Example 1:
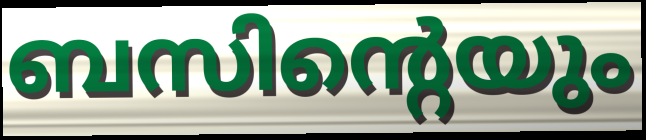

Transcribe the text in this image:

ബസിന്റെയും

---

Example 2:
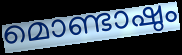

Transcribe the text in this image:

മൊണ്ടാഷും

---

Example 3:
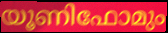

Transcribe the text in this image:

യൂണിഫോമും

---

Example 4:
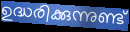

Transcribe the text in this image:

ഉദ്ധരിക്കുന്നുണ്ട്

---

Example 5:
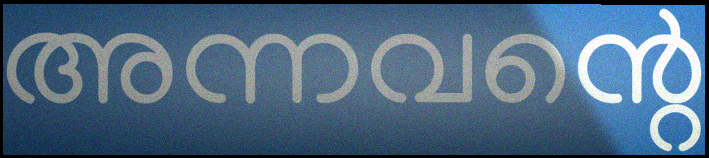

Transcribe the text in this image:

അന്നവന്റെ